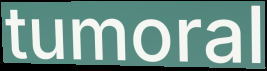
tumoral